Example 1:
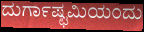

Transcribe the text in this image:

ದುರ್ಗಾಷ್ಟಮಿಯಂದು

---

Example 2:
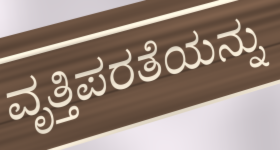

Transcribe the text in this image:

ವೃತ್ತಿಪರತೆಯನ್ನು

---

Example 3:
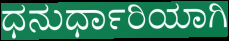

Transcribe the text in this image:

ಧನುರ್ಧಾರಿಯಾಗಿ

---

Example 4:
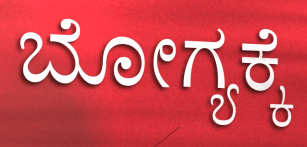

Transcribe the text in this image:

ಬೋಗ್ಯಕ್ಕೆ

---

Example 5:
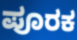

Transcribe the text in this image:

ಪೂರಕ